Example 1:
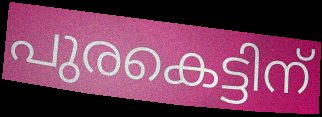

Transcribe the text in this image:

പുരകെട്ടിന്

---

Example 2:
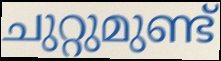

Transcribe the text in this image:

ചുറ്റുമുണ്ട്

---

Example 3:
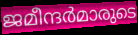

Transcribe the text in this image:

ജമീന്ദർമാരുടെ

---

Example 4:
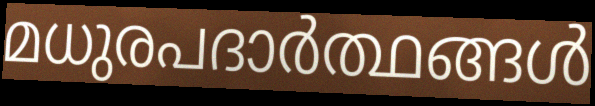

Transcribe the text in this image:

മധുരപദാർത്ഥങ്ങൾ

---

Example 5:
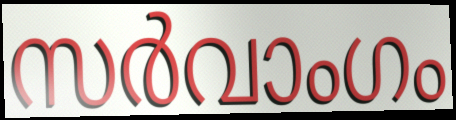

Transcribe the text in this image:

സർവാംഗം